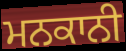
ਮਨਕਾਨੀ